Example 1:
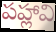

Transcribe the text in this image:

పహ్లావి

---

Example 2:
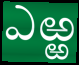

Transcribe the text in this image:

ఎఱ్ఱ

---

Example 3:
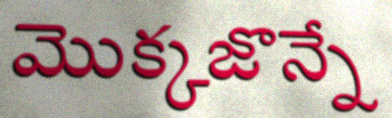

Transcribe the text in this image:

మొక్కజొన్నే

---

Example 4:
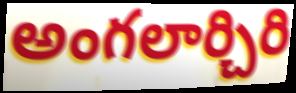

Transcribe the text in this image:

అంగలార్చిరి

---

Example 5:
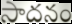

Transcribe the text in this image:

సాదనం